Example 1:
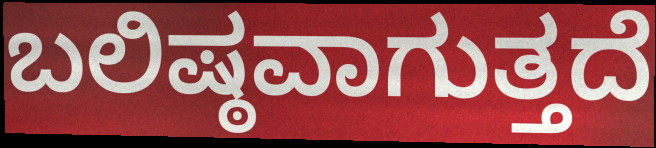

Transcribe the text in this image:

ಬಲಿಷ್ಠವಾಗುತ್ತದೆ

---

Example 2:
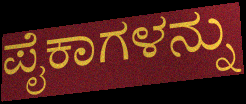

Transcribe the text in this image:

ಪೈಕಾಗಳನ್ನು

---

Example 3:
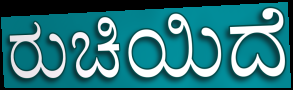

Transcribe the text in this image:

ರುಚಿಯಿದೆ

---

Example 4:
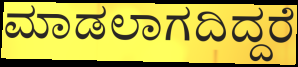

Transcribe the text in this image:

ಮಾಡಲಾಗದಿದ್ದರೆ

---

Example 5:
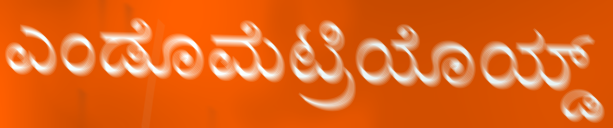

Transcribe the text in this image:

ಎಂಡೊಮೆಟ್ರಿಯೊಯ್ಡ್